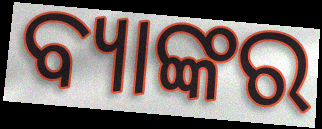
ବ୍ୟାଙ୍କର